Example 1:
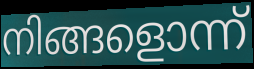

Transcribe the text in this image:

നിങ്ങളൊന്ന്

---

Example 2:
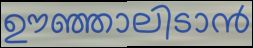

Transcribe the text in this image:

ഊഞ്ഞാലിടാൻ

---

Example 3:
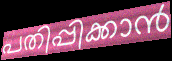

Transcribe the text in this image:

പതിപ്പിക്കാൻ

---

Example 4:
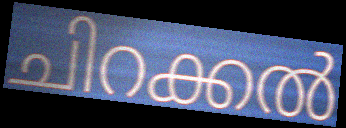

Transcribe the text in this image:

ചിറക്കൽ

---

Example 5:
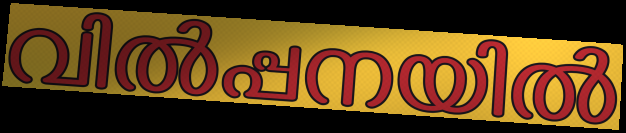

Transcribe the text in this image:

വിൽപ്പനയിൽ